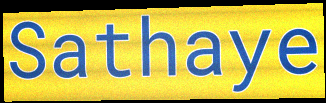
Sathaye